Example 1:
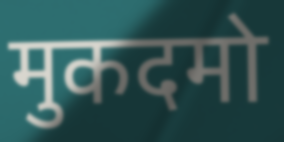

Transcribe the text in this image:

मुकदमो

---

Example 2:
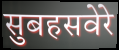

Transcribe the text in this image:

सुबहसवेरे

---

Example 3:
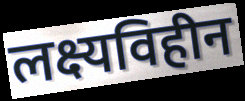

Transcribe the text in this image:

लक्ष्यविहीन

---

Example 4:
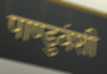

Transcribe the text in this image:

पाण्डुवंशी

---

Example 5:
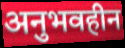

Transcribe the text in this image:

अनुभवहीन